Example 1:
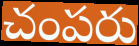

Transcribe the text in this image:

చంపరు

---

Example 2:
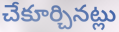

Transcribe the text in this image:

చేకూర్చినట్లు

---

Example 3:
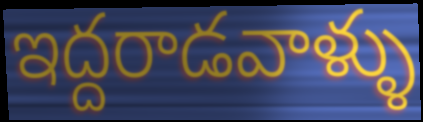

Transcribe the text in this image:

ఇద్దరాడవాళ్ళు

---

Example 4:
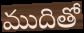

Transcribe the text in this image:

ముదితో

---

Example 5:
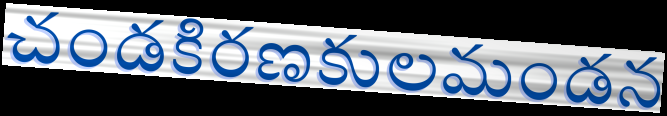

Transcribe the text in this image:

చండకిరణకులమండన